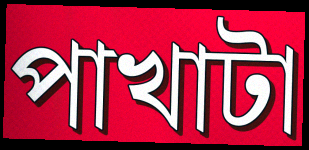
পাখাটা